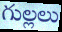
గుల్లలు